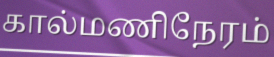
கால்மணிநேரம்